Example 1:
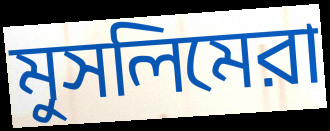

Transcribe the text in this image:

মুসলিমেরা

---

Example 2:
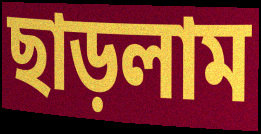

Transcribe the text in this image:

ছাড়লাম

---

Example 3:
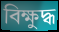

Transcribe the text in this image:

বিক্ষুদ্ধ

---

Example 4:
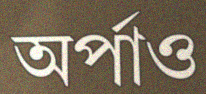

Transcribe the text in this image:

অর্পাও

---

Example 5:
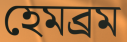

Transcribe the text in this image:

হেমব্রম